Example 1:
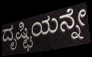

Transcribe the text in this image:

ದೃಷ್ಟಿಯನ್ನೇ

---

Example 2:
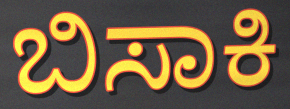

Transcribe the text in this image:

ಬಿಸಾಕಿ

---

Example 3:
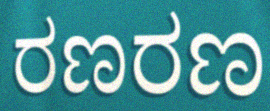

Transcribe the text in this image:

ರಣರಣ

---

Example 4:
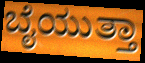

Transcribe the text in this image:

ಬೈಯುತ್ತಾ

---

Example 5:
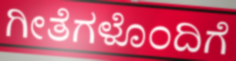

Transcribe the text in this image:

ಗೀತೆಗಳೊಂದಿಗೆ